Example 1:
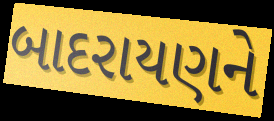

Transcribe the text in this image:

બાદરાયણને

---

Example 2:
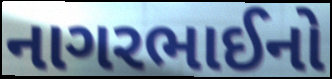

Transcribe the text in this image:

નાગરભાઈનો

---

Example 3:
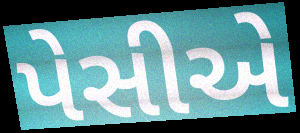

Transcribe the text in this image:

પેસીએ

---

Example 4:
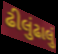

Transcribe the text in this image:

ઢીલુંઢાલું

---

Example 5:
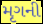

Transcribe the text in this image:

મૃગની